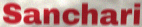
Sanchari